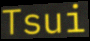
Tsui